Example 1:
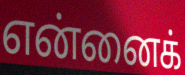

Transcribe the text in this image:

என்னைக்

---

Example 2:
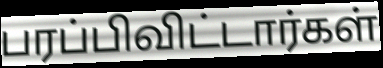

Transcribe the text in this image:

பரப்பிவிட்டார்கள்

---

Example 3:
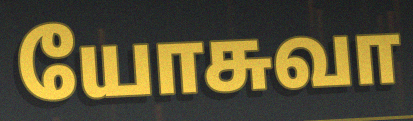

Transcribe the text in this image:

யோசுவா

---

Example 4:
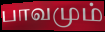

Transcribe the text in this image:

பாவமும்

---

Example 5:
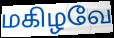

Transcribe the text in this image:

மகிழவே